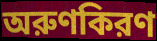
অরুণকিরণ